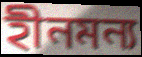
হীনমন্য